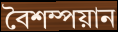
বৈশম্পয়ান